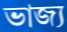
ভাজ্য